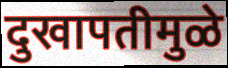
दुखापतीमुळे